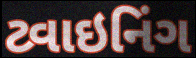
ટ્વાઇનિંગ